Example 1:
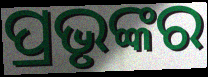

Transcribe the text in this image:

ପ୍ରଭୃଙ୍କର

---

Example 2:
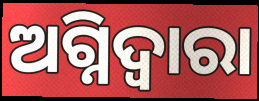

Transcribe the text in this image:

ଅଗ୍ନିଦ୍ଵାରା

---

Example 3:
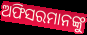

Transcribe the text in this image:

ଅଫିସରମାନଙ୍କୁ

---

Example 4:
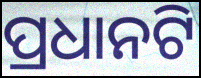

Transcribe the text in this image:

ପ୍ରଧାନଟି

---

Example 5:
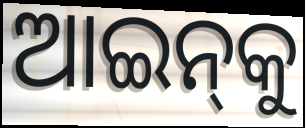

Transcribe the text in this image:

ଆଇନ୍‍କୁ